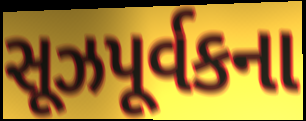
સૂઝપૂર્વકના